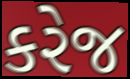
કરેજ